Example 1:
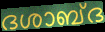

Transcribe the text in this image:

ദശാബ്ദ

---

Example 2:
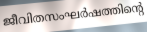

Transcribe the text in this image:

ജീവിതസംഘർഷത്തിന്റെ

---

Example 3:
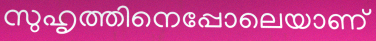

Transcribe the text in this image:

സുഹൃത്തിനെപ്പോലെയാണ്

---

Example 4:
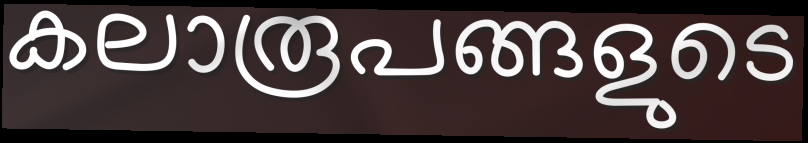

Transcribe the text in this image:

കലാരൂപങ്ങളുടെ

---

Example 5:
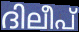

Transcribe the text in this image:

ദിലീപ്